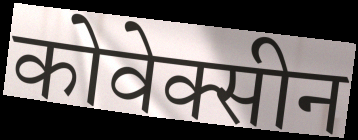
कोवेक्सीन